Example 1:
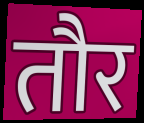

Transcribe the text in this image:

तौर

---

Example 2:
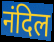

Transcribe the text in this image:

नंदिल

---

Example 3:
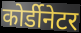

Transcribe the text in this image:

कोर्डीनेटर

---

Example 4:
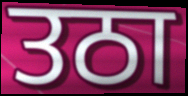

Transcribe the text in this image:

उठा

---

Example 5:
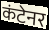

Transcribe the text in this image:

कंटेनर